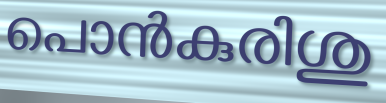
പൊൻകുരിശു